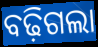
ବଢ଼ିଗଲା